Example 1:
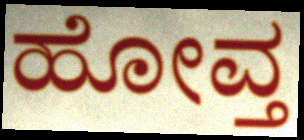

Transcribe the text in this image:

ಹೋವ್ತ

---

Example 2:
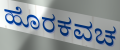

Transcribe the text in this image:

ಹೊರಕವಚ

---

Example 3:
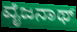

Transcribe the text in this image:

ವೈಜನಾಥ್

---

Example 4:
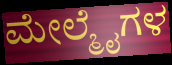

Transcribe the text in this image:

ಮೇಲ್ಮೈಗಳ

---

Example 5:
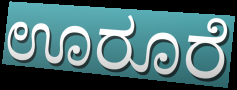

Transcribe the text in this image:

ಊರೂರೆ